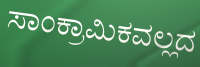
ಸಾಂಕ್ರಾಮಿಕವಲ್ಲದ